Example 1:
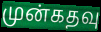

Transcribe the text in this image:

முன்கதவு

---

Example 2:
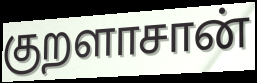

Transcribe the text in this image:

குறளாசான்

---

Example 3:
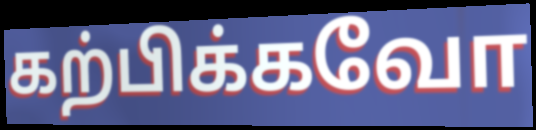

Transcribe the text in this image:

கற்பிக்கவோ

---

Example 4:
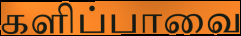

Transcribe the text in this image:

களிப்பாவை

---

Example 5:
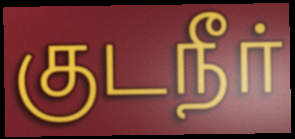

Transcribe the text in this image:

குடநீர்